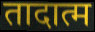
तादात्म